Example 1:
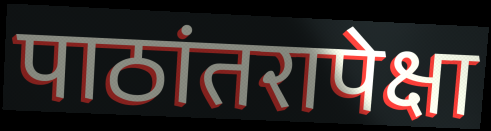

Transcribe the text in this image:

पाठांतरापेक्षा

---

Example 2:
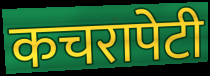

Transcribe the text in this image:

कचरापेटी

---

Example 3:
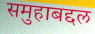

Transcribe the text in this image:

समुहाबद्दल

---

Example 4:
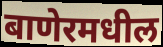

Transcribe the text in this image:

बाणेरमधील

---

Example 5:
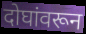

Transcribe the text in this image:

दोघांवरून